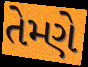
તેમ્ણે